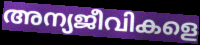
അന്യജീവികളെ